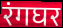
रंगघर